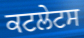
ਕਟਲੇਟਸ